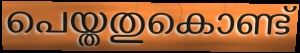
പെയ്തതുകൊണ്ട്